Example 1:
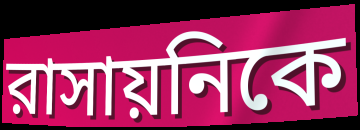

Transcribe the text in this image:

রাসায়নিকে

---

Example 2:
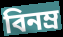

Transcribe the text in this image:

বিনম্র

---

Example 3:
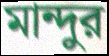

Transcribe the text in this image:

মান্দুর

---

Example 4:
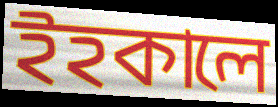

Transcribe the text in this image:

ইহকালে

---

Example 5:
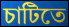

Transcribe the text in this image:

চাটিতে